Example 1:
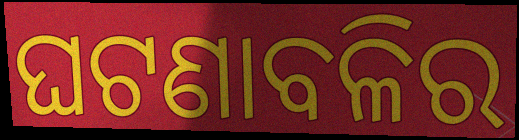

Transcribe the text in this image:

ଘଟଣାବଳିର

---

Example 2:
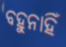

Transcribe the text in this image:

ବହୁନାହିଁ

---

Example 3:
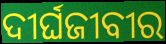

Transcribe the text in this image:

ଦୀର୍ଘଜୀବୀର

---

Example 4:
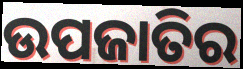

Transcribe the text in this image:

ଉପଜାତିର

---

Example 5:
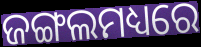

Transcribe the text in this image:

ଜଙ୍ଗଲମଧ୍ୟରେ